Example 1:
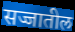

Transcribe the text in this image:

सज्जातील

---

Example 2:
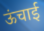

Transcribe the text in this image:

ऊंचाई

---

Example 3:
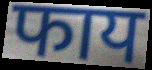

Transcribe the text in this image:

फाय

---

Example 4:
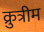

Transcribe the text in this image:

क्रुत्रीम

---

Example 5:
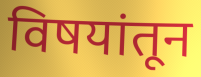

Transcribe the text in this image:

विषयांतून